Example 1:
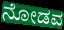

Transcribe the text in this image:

ನೋಡವ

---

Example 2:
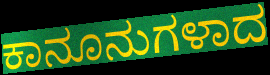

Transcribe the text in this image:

ಕಾನೂನುಗಳಾದ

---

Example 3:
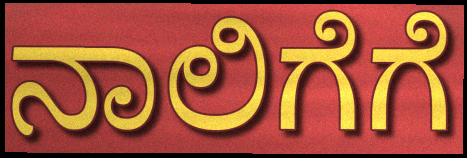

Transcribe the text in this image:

ನಾಲಿಗೆಗೆ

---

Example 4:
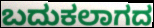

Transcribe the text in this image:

ಬದುಕಲಾಗದ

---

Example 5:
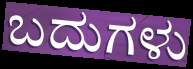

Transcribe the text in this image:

ಬದುಗಳು